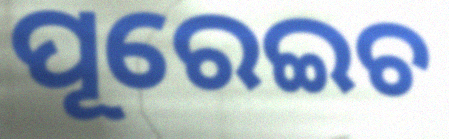
ପୂରେଇଚ